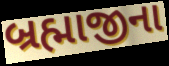
બ્રહ્માજીના